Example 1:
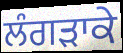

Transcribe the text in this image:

ਲੰਗੜਾਕੇ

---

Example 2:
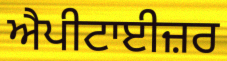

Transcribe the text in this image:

ਐਪੀਟਾਈਜ਼ਰ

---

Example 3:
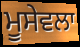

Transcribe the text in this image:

ਮੂਸੇਵਲਾ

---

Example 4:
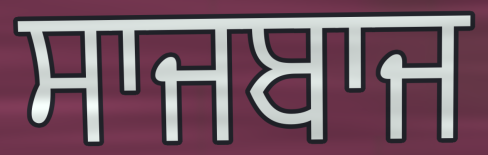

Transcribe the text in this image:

ਸਾਜਬਾਜ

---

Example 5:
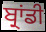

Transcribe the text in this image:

ਬ੍ਰਾਂਡੀ